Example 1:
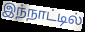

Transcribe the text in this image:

இந்நாட்டில்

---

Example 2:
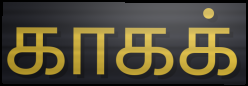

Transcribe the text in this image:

காகக்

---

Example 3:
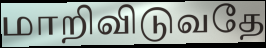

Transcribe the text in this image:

மாறிவிடுவதே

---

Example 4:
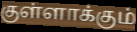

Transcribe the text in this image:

குள்ளாக்கும்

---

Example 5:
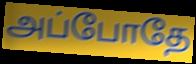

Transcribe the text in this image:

அப்போதே